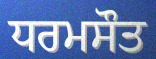
ਧਰਮਸੌਤ